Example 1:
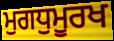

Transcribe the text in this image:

ਮੁਗਧੁਮੂਰਖ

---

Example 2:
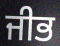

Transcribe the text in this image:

ਜੀਭ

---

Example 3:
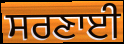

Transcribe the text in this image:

ਸਰਣਾਈ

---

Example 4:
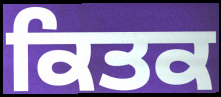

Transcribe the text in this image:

ਕਿਤਕ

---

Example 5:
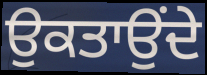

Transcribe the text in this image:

ਉਕਤਾਉਂਦੇ